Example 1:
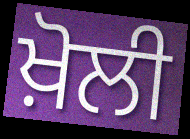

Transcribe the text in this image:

ਖ਼ੋਲੀ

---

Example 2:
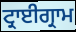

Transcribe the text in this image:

ਟ੍ਰਾਈਗ੍ਰਾਮ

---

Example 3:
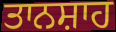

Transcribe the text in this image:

ਤਾਨਸ਼ਾਹ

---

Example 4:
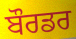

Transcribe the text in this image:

ਬੌਰਡਰ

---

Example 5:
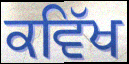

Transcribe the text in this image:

ਕਵਿੱਖ